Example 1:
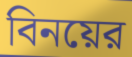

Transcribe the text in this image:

বিনয়ের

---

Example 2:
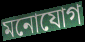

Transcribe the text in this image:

মনোযোগ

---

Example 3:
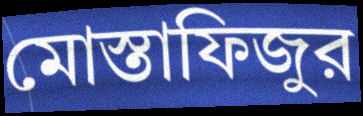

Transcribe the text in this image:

মোস্তাফিজুর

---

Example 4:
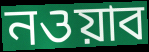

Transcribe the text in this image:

নওয়াব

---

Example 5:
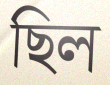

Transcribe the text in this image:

ছিল